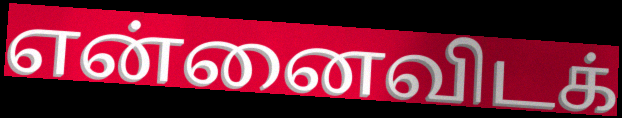
என்னைவிடக்